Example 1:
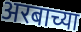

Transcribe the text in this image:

अरबाच्या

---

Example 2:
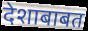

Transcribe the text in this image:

देशाबाबत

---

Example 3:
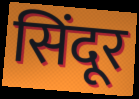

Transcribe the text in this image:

सिंदूर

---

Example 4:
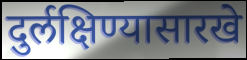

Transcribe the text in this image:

दुर्लक्षिण्यासारखे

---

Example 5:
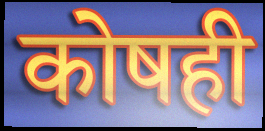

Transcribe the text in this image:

कोषही